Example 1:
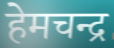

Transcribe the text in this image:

हेमचन्द्र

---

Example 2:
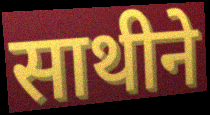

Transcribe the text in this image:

साथीने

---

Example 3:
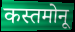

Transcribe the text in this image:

कस्तमोनू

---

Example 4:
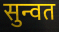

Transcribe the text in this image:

सुन्वत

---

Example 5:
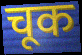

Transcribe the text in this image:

चूक